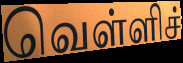
வெள்ளிச்